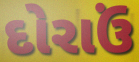
દોરાઉં